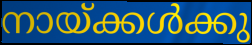
നായ്ക്കൾക്കു